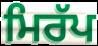
ਮਿਰੱਪ